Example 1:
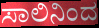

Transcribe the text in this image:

ಸಾಲಿನಿಂದ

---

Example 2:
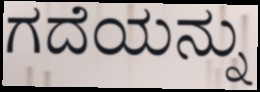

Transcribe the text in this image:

ಗದೆಯನ್ನು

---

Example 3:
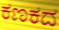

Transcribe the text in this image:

ಕಣಕದ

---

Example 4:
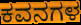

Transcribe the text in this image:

ಕವನಗಳ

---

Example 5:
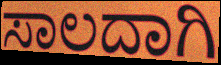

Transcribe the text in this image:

ಸಾಲದಾಗಿ